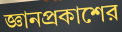
জ্ঞানপ্রকাশের